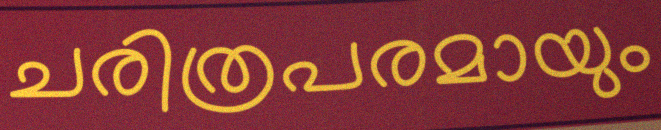
ചരിത്രപരമായും